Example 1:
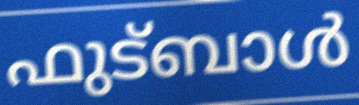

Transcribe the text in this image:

ഫുട്ബാൾ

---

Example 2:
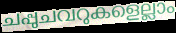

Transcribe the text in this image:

ചപ്പുചവറുകളെല്ലാം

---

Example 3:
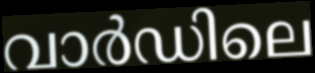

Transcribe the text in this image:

വാർഡിലെ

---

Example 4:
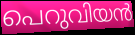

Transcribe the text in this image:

പെറുവിയൻ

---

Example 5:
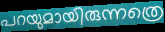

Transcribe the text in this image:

പറയുമായിരുന്നത്രെ